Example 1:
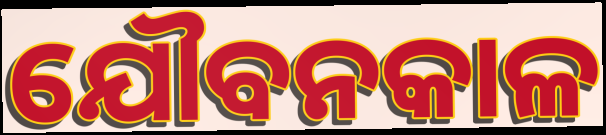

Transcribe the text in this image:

ଯୌବନକାଳ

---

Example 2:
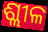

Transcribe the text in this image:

ଶ୍ଲୀଳ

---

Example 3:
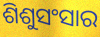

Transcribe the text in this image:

ଶିଶୁସଂସାର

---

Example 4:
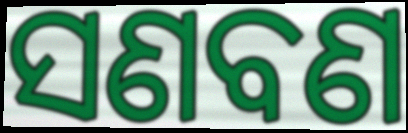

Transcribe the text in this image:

ସଣବଣ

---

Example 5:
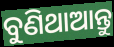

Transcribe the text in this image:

ବୁଣିଥାଆନ୍ତୁ